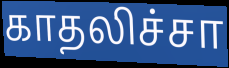
காதலிச்சா